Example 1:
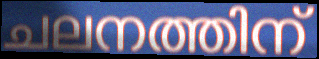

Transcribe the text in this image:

ചലനത്തിന്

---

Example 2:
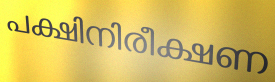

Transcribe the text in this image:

പക്ഷിനിരീക്ഷണ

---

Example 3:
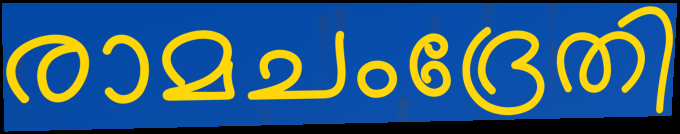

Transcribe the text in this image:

രാമചംദ്രേതി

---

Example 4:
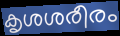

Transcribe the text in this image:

കൃശശരീരം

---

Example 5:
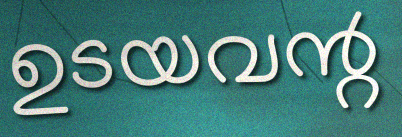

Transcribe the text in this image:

ഉടയവന്റ